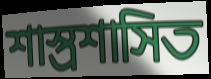
শাস্ত্রশাসিত